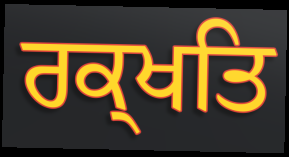
ਰਕ੍ਖਤਿ